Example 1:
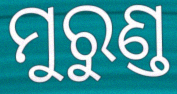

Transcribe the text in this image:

ମୁରୁଣ୍ଡ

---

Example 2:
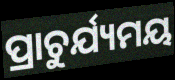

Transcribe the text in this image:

ପ୍ରାଚୁର୍ଯ୍ୟମୟ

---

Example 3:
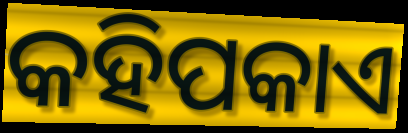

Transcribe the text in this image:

କହିପକାଏ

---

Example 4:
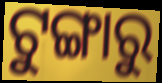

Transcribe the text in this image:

ଟୁଙ୍ଗାରୁ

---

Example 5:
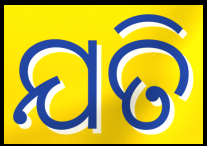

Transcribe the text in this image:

ଯତି